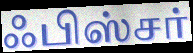
ஃபிஸ்சர்